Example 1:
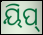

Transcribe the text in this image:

ୟିପ୍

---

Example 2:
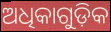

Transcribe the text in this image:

ଅଧିକାଗୁଡ଼ିକ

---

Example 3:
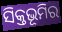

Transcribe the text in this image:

ସିକ୍ତଭୂମିର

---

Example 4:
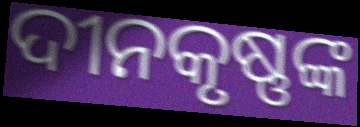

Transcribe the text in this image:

ଦୀନକୃଷ୍ଣଙ୍କ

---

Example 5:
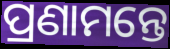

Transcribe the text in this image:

ପ୍ରଣାମନ୍ତେ